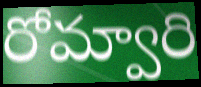
రోమ్వారి